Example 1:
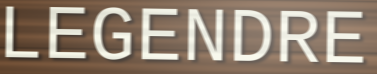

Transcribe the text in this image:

LEGENDRE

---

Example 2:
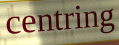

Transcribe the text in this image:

centring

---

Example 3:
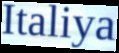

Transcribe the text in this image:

Italiya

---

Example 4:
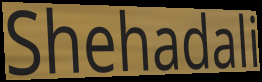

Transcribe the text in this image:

Shehadali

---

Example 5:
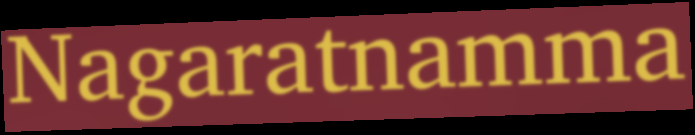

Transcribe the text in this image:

Nagaratnamma